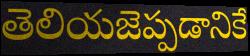
తెలియజెప్పడానికే